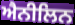
ਐਨੀਲਿਨ